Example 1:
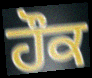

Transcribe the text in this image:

ਹੌਕ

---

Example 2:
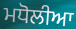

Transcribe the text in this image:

ਮਧੋਲੀਆ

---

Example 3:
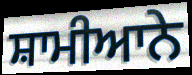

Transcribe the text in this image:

ਸ਼ਾਮੀਆਨੇ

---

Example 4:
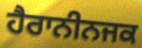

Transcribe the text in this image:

ਹੈਰਾਨੀਨਜਕ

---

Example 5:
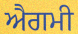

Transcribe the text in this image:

ਐਗਮੀ